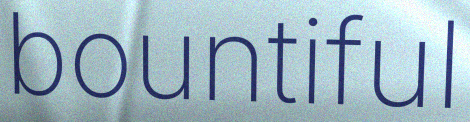
bountiful